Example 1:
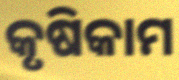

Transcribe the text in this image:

କୃଷିକାମ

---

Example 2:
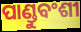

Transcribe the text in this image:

ପାଣ୍ଡୁବଂଶୀ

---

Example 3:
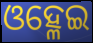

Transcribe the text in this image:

ଓହ୍ଳେଇ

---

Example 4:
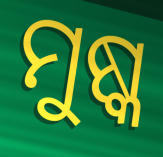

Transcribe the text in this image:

ମୁଷ୍କ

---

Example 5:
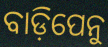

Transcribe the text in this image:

ବାଡ଼ିପେନୁ